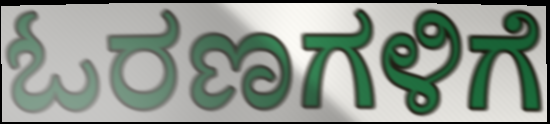
ಓರಣಗಳಿಗೆ